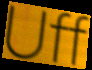
Uff